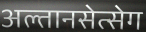
अल्तानसेत्सेग